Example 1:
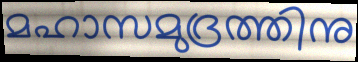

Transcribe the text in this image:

മഹാസമുദ്രത്തിനു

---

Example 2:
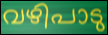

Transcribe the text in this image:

വഴിപാടു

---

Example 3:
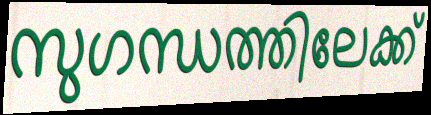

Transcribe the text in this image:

സുഗന്ധത്തിലേക്ക്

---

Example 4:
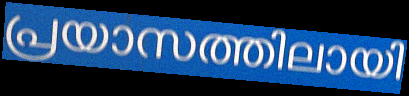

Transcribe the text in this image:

പ്രയാസത്തിലായി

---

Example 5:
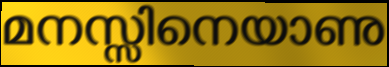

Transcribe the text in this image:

മനസ്സിനെയാണു